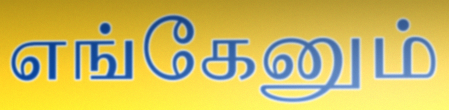
எங்கேனும்